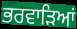
ਭਰਵਾੜਿਆਂ